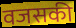
वजसकी